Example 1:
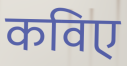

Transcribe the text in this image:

कविए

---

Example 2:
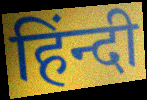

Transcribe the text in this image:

हिंन्दी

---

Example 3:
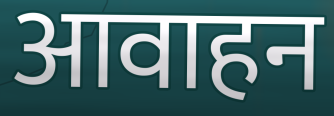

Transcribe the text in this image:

आवाहन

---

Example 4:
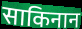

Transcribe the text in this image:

साकिनान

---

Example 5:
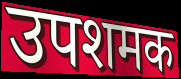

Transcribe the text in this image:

उपशमक